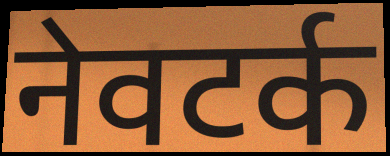
नेवटर्क